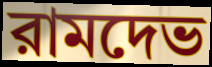
রামদেভ